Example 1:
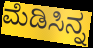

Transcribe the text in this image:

ಮೆಡಿಸಿನ್ನ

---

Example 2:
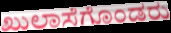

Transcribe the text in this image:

ಖುಲಾಸೆಗೊಂಡರು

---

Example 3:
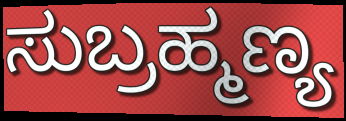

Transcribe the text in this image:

ಸುಬ್ರಹ್ಮಣ್ಯ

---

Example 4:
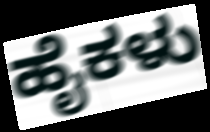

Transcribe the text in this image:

ಹೈಕಳು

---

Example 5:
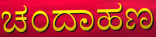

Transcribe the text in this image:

ಚಂದಾಹಣ